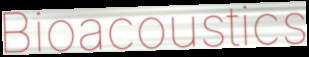
Bioacoustics